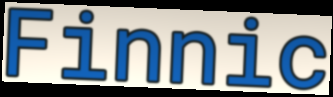
Finnic